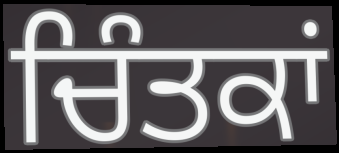
ਚਿੰਤਕਾਂ